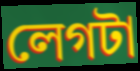
লেগটা